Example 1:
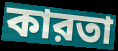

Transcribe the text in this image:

কারতা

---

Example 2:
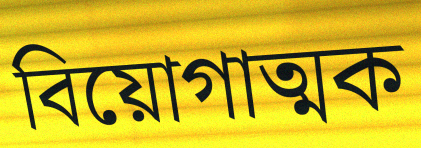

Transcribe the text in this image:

বিয়োগাত্মক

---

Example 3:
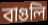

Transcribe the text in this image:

বাগুলি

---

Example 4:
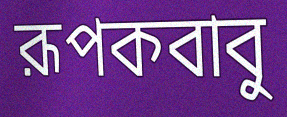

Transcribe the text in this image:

রূপকবাবু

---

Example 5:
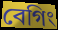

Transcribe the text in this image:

বেগিং